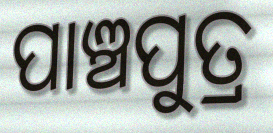
ପାଞ୍ଚପୁତ୍ର